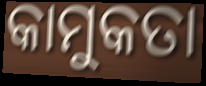
କାମୁକତା